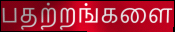
பதற்றங்களை